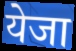
येजा